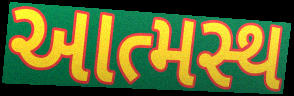
આત્મસ્થ